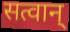
सत्वान्